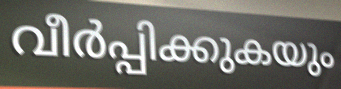
വീർപ്പിക്കുകയും